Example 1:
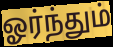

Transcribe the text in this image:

ஓர்ந்தும்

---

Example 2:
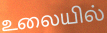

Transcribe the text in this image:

உலையில்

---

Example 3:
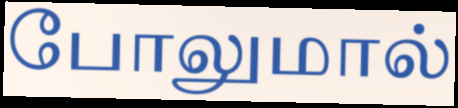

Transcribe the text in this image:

போலுமால்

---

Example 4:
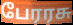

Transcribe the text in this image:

பேரரசு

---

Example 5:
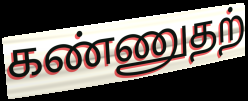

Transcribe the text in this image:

கண்ணுதற்